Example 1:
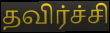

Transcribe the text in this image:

தவிர்ச்சி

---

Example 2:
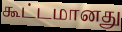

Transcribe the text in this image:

கூட்டமானது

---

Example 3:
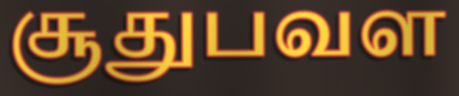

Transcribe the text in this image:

சூதுபவள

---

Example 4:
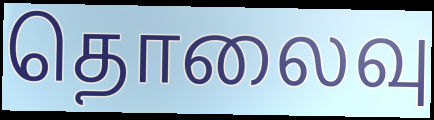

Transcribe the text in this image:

தொலைவு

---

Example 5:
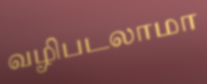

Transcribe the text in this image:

வழிபடலாமா